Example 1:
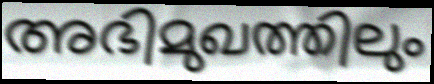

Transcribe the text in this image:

അഭിമുഖത്തിലും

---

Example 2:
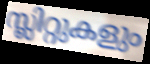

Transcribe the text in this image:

സ്ലിറ്റുകളും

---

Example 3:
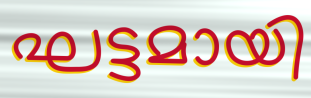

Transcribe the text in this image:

ഘട്ടമായി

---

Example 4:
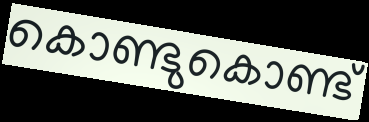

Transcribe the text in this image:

കൊണ്ടുകൊണ്ട്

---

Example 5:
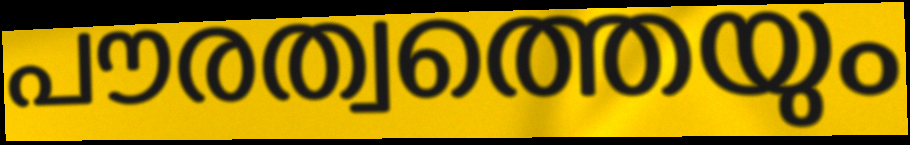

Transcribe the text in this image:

പൗരത്വത്തെയും